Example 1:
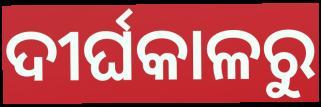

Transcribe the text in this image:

ଦୀର୍ଘକାଳରୁ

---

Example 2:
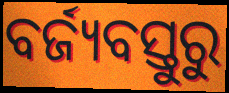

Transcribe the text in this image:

ବର୍ଜ୍ୟବସ୍ତୁରୁ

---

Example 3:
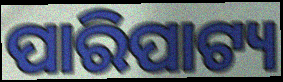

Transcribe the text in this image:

ପାରିପାଟ୍ୟ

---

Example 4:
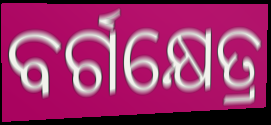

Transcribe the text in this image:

ବର୍ଗକ୍ଷେତ୍ର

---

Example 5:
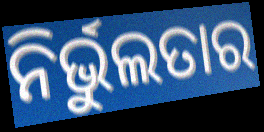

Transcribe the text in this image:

ନିର୍ଭୁଲତାର